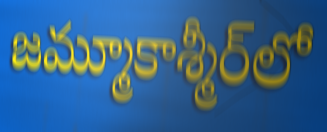
జమ్మూకాశ్మీర్‌లో